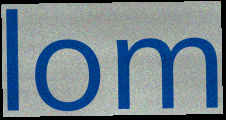
lom